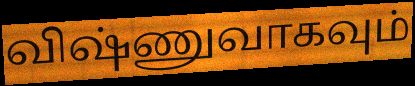
விஷ்ணுவாகவும்